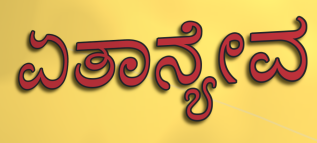
ಏತಾನ್ಯೇವ